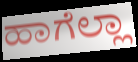
ಹಾಗೆಲ್ಲಾ